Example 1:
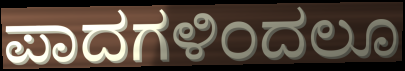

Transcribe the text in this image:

ಪಾದಗಳಿಂದಲೂ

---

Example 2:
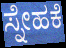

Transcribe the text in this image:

ಸ್ನೇಹಕೆ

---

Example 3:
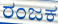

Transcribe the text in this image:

ರಂಜಕ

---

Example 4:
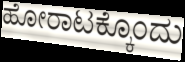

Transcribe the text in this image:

ಹೋರಾಟಕ್ಕೊಂದು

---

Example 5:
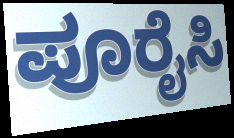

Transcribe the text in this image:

ಪೂರೈಸಿ